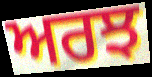
ਅਰਝ